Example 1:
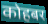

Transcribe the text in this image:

कोहबर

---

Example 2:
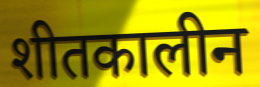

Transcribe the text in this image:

शीतकालीन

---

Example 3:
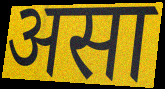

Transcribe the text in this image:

असा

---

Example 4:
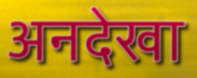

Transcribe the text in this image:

अनदेखा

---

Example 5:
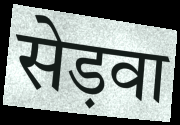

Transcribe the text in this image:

सेड़वा